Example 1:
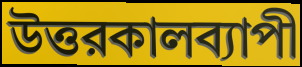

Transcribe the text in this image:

উত্তরকালব্যাপী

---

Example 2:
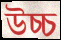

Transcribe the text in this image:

উচ্চ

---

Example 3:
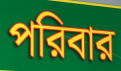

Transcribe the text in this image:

পরিবার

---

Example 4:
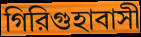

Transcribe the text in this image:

গিরিগুহাবাসী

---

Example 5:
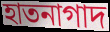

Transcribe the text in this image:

হাতনাগাদ